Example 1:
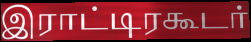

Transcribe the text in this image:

இராட்டிரகூடர்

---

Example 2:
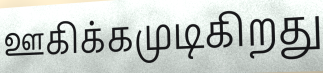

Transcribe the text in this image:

ஊகிக்கமுடிகிறது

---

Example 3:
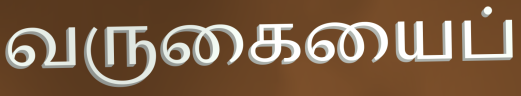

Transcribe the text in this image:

வருகையைப்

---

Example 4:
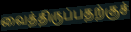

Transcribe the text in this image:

வைத்திருப்பதற்குச்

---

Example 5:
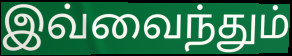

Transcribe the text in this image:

இவ்வைந்தும்